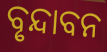
ବୃନ୍ଦାବନ